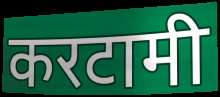
करटामी